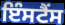
ਇੰਸਟੈਂਸ